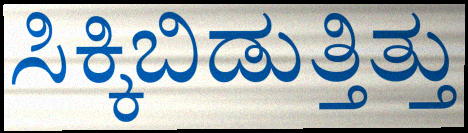
ಸಿಕ್ಕಿಬಿಡುತ್ತಿತ್ತು